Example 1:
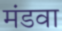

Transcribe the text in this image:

मंडवा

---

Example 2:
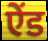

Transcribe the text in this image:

ऐंड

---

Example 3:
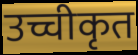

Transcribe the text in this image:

उच्चीकृत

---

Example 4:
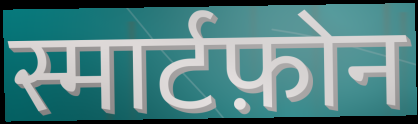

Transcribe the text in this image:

स्मार्टफ़ोन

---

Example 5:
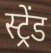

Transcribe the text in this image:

स्ट्रेंड